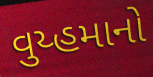
વુય્હમાનો